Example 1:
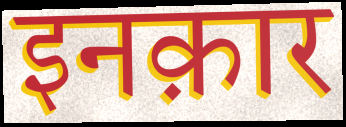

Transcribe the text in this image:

इनक़ार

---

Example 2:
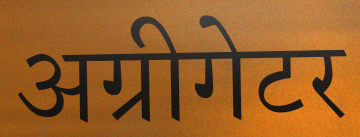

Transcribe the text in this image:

अग्रीगेटर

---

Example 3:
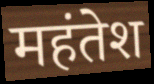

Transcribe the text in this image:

महंतेश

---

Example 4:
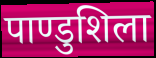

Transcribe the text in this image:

पाण्डुशिला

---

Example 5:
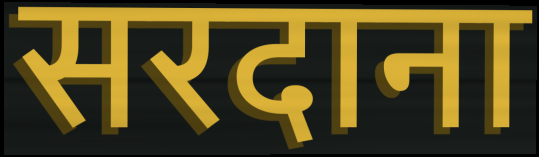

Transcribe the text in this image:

सरदाना